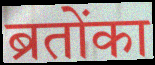
ब्रतोंका